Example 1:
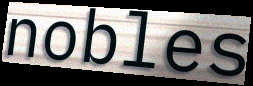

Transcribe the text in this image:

nobles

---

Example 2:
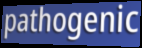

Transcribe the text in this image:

pathogenic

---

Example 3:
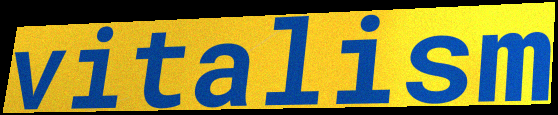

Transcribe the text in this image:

vitalism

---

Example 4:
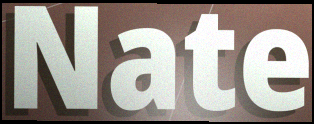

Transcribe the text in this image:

Nate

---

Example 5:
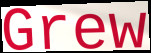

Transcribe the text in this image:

Grew